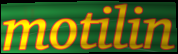
motilin